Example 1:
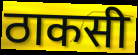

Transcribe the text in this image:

ठाकसी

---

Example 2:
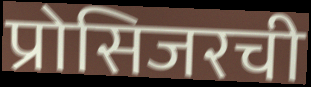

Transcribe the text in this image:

प्रोसिजरची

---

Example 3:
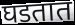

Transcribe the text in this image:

घडतात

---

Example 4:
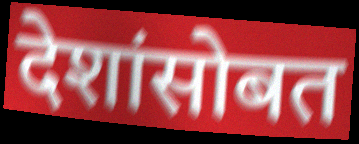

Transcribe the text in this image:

देशांसोबत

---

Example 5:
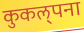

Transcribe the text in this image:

कुकल्पना